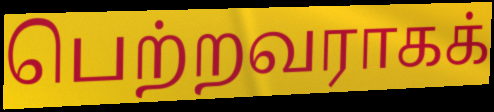
பெற்றவராகக்